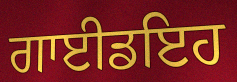
ਗਾਈਡਇਹ